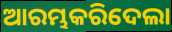
ଆରମ୍ଭକରିଦେଲା